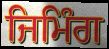
ਜਿਮਿੰਗ